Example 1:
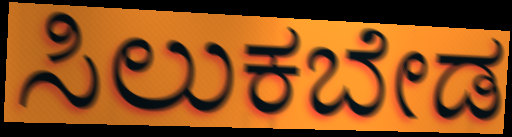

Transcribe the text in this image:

ಸಿಲುಕಬೇಡ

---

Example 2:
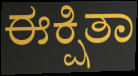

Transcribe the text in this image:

ಈಕ್ಷಿತಾ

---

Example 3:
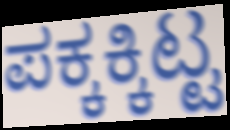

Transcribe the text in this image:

ಪಕ್ಕಕ್ಕಿಟ್ಟ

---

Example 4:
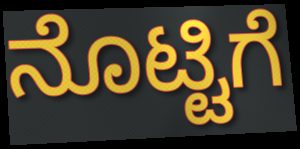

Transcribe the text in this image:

ನೊಟ್ಟಿಗೆ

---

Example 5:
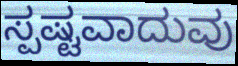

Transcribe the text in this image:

ಸ್ಪಷ್ಟವಾದುವು